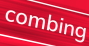
combing